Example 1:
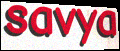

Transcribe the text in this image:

savya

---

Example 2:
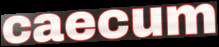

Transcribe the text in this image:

caecum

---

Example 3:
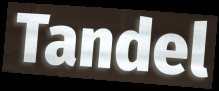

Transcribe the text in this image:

Tandel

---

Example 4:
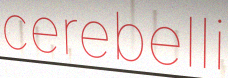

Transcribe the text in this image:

cerebelli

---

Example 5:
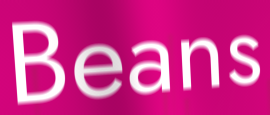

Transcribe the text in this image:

Beans